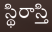
స్థిరాస్తి